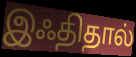
இஃதிதால்